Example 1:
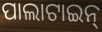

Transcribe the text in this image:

ପାଲାଟାଇନ୍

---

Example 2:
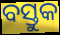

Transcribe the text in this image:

ବସ୍ତୁକ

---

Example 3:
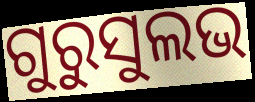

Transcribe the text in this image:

ଗୁରୁସୁଲଭ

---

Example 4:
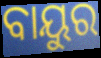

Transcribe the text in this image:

ବାୟୁର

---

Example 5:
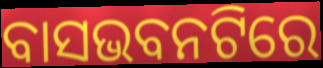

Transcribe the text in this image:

ବାସଭବନଟିରେ